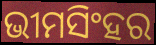
ଭୀମସିଂହର